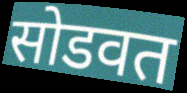
सोडवत